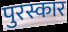
पुरस्कार